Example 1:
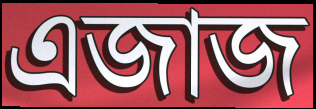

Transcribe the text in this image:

এজাজ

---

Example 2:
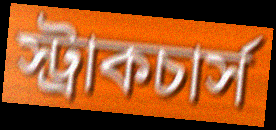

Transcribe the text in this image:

স্ট্রাকচার্স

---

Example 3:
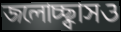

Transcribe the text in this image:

জলোচ্ছ্বাসও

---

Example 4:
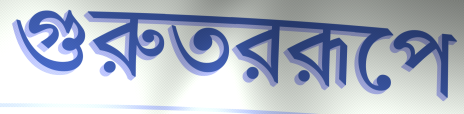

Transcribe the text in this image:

গুরুতররূপে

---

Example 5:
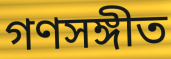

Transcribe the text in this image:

গণসঙ্গীত